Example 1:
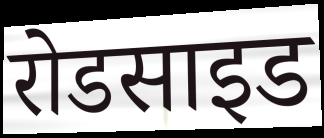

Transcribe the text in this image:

रोडसाइड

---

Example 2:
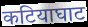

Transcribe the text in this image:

कटियाघाट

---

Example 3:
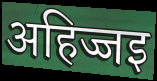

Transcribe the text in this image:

अहिज्जइ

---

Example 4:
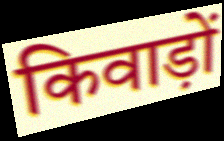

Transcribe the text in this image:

किवाड़ों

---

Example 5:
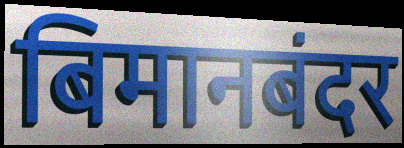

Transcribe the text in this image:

बिमानबंदर